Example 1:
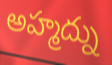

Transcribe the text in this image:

అహ్మద్ను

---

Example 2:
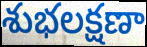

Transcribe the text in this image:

శుభలక్షణా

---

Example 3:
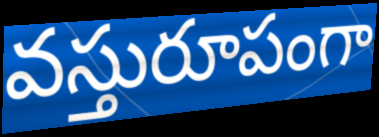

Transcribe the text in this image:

వస్తురూపంగా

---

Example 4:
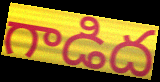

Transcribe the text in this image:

గాడిద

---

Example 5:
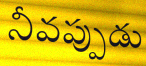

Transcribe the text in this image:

నీవప్పుడు